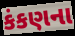
કંકણના